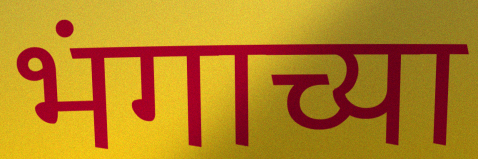
भंगाच्या